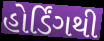
હોર્ડિંગથી